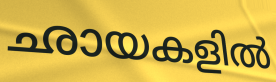
ഛായകളിൽ